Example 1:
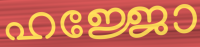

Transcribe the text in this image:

ഹജ്ജോ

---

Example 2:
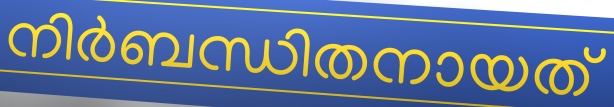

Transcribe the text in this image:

നിർബന്ധിതനായത്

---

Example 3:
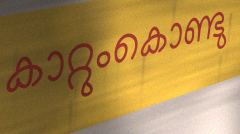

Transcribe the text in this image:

കാറ്റുംകൊണ്ടു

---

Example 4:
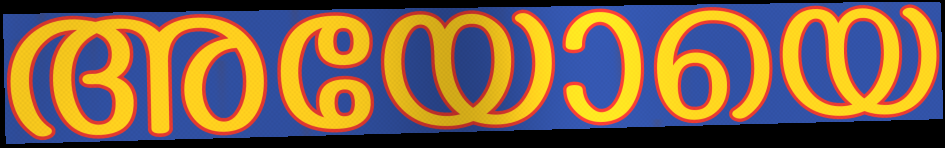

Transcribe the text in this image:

അയോയെ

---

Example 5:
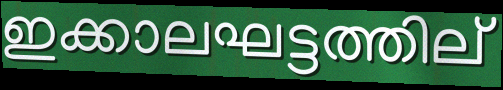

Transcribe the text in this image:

ഇക്കാലഘട്ടത്തില്